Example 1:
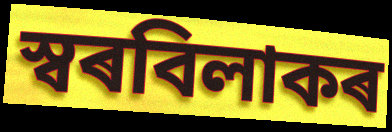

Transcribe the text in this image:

স্বৰবিলাকৰ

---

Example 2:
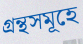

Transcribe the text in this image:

গ্ৰন্থসমূহে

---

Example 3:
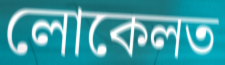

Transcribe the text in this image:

লোকেলত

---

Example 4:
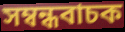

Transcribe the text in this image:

সম্বন্ধবাচক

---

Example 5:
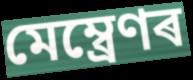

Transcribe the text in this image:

মেম্ব্ৰেণৰ